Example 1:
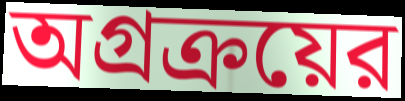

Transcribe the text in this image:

অগ্রক্রয়ের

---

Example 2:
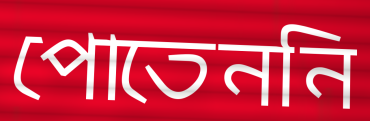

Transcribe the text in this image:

পোতেননি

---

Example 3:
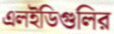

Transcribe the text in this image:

এলইডিগুলির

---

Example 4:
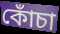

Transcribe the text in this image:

কোঁচা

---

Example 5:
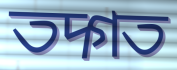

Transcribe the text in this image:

তদ্গত